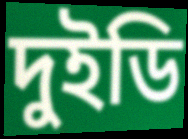
দুইডি